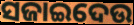
ସଜାଇଦେଉ